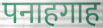
पनाहगाह